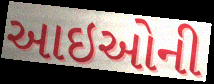
આઇઓની